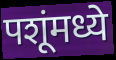
पशूंमध्ये